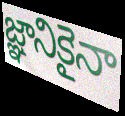
జ్ఞానికైనా